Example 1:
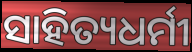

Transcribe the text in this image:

ସାହିତ୍ୟଧର୍ମୀ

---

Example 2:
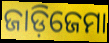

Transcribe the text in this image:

ଜାଡ଼ିଜେମା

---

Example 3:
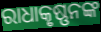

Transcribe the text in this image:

ରାଧାକୃଷ୍ଣନଙ୍କ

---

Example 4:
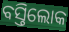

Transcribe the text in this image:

ବସ୍ତିଲୋକ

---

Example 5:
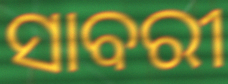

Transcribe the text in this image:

ସାବରୀ